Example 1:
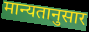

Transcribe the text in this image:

मान्यतानुसार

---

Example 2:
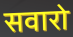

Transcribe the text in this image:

सवारो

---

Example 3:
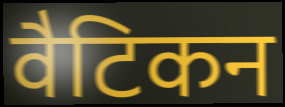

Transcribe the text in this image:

वैटिकन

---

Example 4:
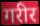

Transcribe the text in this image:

गरीर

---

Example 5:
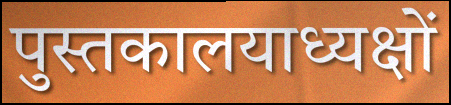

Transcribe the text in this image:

पुस्तकालयाध्यक्षों